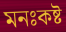
মনঃকষ্ট